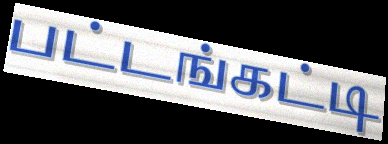
பட்டங்கட்டி